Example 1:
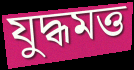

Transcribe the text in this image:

যুদ্ধমত্ত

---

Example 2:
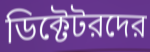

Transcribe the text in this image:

ডিক্টেটরদের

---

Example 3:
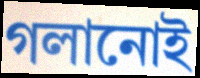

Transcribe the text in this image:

গলানোই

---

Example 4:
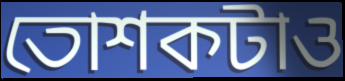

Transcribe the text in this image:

তোশকটাও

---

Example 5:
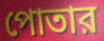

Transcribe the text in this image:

পোতার